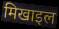
मिखाइल